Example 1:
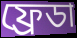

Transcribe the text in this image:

ফ্রেডা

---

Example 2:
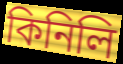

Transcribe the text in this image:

কিনিলি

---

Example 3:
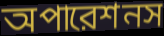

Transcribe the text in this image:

অপারেশনস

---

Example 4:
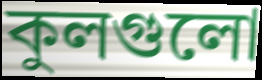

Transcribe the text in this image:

কুলগুলো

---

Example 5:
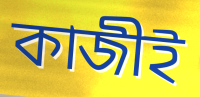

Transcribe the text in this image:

কাজীই